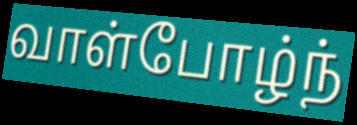
வாள்போழ்ந்